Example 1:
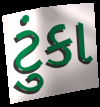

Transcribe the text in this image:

ટુંકા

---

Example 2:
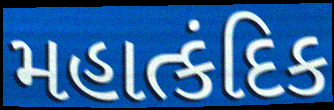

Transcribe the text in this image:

મહાત્કંદિક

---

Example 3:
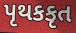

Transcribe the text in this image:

પૃથકકૃત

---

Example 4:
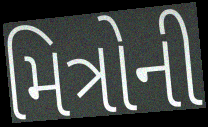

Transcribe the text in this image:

મિત્રોની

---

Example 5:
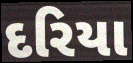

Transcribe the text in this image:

દરિયા